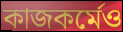
কাজকর্মেও